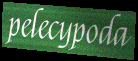
pelecypoda